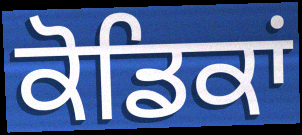
ਕੋਡਿਕਾਂ